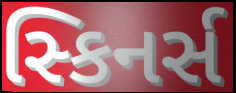
સ્કિનર્સ